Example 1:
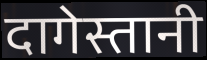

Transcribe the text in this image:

दागेस्तानी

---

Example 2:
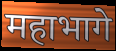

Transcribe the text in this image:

महाभागे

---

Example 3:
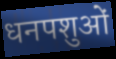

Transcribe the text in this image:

धनपशुओं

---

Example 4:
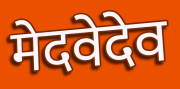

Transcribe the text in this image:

मेदवेदेव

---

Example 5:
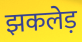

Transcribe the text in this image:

झकलेड़